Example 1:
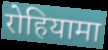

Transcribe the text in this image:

रोहियामा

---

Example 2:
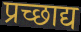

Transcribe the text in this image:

प्रच्छाद्य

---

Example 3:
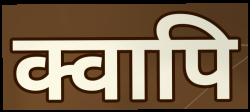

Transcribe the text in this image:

क्वापि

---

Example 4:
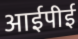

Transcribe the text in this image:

आईपीई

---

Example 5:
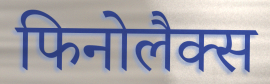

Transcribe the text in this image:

फिनोलैक्स